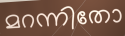
മറന്നിതോ